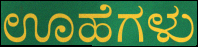
ಊಹೆಗಳು